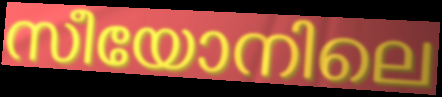
സീയോനിലെ